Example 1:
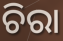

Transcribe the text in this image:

ଚିରା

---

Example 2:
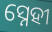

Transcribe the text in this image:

ସ୍ନେହୀ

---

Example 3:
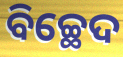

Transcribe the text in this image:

ବିଚ୍ଛେଦ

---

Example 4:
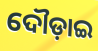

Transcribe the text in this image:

ଦୌଡ଼ାଇ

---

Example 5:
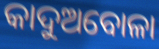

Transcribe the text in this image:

କାଦୁଅବୋଳା